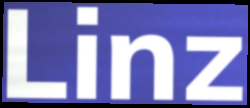
Linz